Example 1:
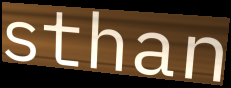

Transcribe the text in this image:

sthan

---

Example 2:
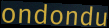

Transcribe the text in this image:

ondondu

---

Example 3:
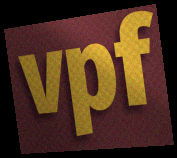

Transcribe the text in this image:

vpf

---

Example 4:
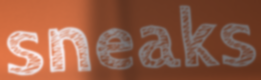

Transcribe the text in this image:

sneaks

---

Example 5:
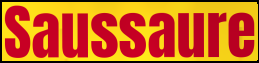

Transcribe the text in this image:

Saussaure